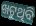
ଖଟୁଥିବି